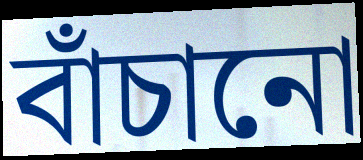
বাঁচানো